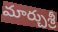
మార్చుశ్రీ